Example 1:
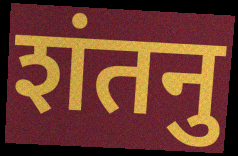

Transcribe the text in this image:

शंतनु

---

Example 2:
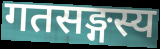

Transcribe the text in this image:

गतसङ्गस्य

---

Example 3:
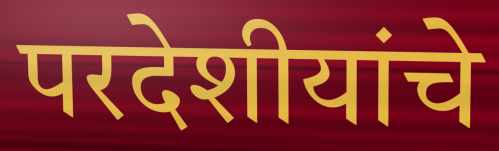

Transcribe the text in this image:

परदेशीयांचे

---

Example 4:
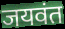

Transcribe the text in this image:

जयवंत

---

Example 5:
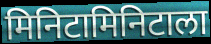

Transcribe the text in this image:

मिनिटामिनिटाला